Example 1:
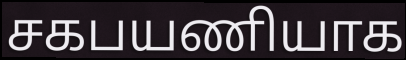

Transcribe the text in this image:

சகபயணியாக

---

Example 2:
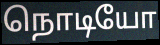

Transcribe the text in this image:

நொடியோ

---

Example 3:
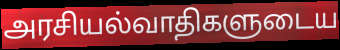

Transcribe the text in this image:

அரசியல்வாதிகளுடைய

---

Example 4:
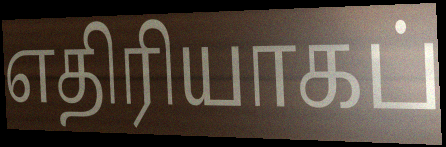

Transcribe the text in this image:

எதிரியாகப்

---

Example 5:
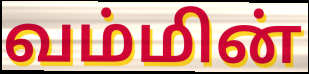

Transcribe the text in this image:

வம்மின்